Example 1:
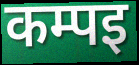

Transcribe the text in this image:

कम्पइ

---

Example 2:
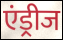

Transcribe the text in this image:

एंड्रीज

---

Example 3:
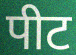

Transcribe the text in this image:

पीट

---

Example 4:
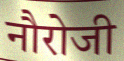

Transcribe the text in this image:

नौरोजी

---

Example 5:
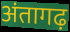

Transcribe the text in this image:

अंतागढ़